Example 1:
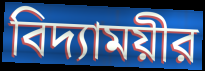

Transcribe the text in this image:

বিদ্যাময়ীর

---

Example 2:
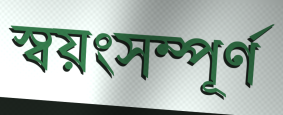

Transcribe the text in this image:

স্বয়ংসম্পূর্ণ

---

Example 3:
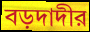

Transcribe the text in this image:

বড়দাদীর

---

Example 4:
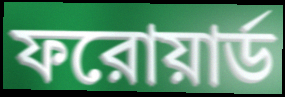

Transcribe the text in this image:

ফরোয়ার্ড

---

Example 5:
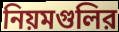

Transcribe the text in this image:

নিয়মগুলির